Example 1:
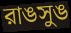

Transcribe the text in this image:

রাঙসুঙ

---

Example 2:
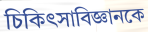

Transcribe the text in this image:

চিকিৎসাবিজ্ঞানকে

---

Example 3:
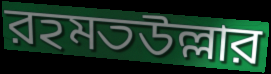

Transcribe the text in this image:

রহমতউল্লার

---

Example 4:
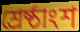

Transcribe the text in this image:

শ্রেষ্ঠাংশ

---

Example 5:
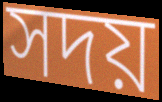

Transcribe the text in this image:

সদয়